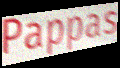
Pappas